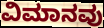
ವಿಮಾನವು